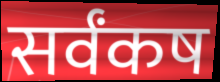
सर्वंकष